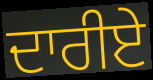
ਦਾਰੀਏ